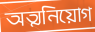
অত্মনিয়োগ